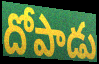
దోపాడు